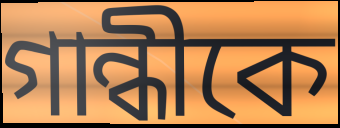
গান্ধীকে